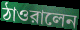
ঠাওরালেন